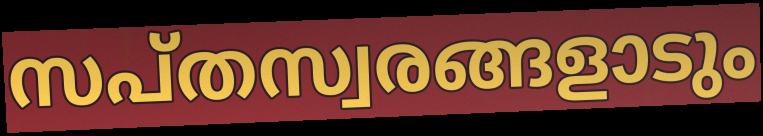
സപ്തസ്വരങ്ങളാടും